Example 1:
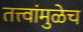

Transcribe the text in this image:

तत्त्वांमुळेच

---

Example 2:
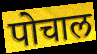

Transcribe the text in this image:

पोचाल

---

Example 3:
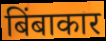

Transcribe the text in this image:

बिंबाकार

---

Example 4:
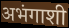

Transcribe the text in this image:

अभंगाशी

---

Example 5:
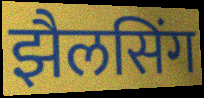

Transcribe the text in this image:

झैलसिंग